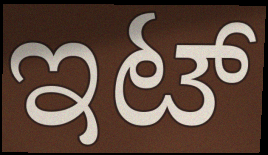
ಇಟ್